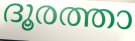
ദൂരത്താ